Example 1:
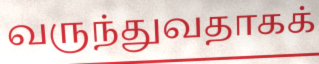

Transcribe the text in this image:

வருந்துவதாகக்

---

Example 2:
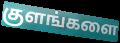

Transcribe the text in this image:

குளங்களை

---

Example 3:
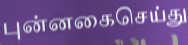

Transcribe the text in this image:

புன்னகைசெய்து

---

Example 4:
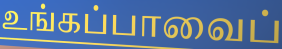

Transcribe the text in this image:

உங்கப்பாவைப்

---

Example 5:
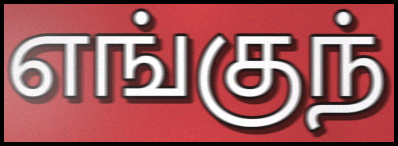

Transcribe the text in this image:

எங்குந்